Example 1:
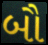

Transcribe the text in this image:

બૌ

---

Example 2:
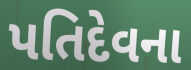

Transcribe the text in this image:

પતિદેવના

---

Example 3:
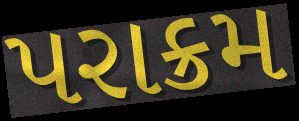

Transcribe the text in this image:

પરાક્રમ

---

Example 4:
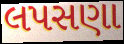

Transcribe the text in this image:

લપસણા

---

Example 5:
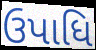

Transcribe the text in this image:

ઉપાધિ